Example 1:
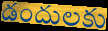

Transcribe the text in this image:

డందులకు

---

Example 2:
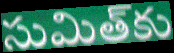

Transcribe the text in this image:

సుమిత్‌కు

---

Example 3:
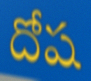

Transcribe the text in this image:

దోష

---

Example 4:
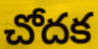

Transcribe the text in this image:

చోదక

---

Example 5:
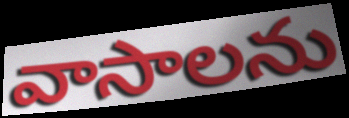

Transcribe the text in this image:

వాసాలను